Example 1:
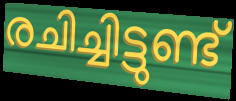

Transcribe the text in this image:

രചിച്ചിട്ടുണ്ട്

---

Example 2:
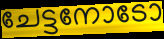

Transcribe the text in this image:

ചേട്ടനോടോ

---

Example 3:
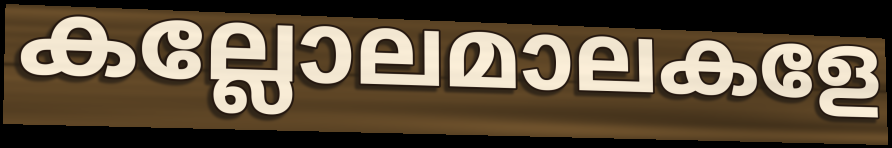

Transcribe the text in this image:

കല്ലോലമാലകളേ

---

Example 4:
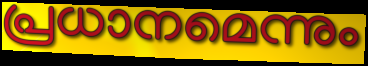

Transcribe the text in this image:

പ്രധാനമെന്നും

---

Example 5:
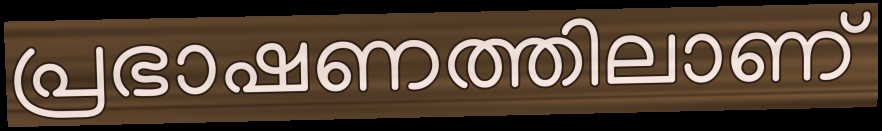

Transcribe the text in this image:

പ്രഭാഷണത്തിലാണ്